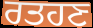
ਰਤਹਣ